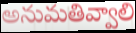
అనుమతివ్వాలి